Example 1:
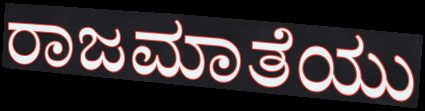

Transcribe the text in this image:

ರಾಜಮಾತೆಯು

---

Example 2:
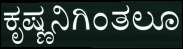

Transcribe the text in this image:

ಕೃಷ್ಣನಿಗಿಂತಲೂ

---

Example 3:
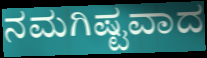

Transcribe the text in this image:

ನಮಗಿಷ್ಟವಾದ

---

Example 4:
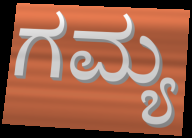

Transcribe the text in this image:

ಗಮ್ಯ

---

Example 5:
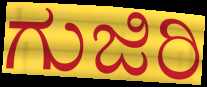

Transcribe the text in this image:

ಗುಜಿರಿ